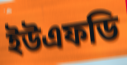
ইউএফডি